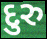
દુરુ